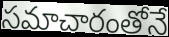
సమాచారంతోనే